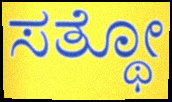
ಸತ್ಥೋ